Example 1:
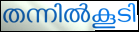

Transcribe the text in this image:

തന്നിൽകൂടി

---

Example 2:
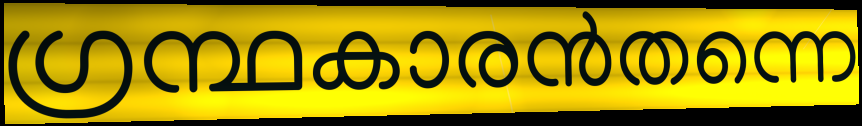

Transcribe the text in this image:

ഗ്രന്ഥകാരൻതന്നെ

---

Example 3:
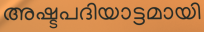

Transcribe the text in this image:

അഷ്ടപദിയാട്ടമായി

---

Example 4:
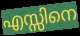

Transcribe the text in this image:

എസ്സിനെ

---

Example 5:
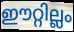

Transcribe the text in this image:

ഈറ്റില്ലം